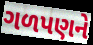
ગળપણને